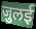
जुलई